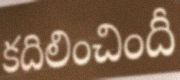
కదిలించిందీ